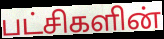
பட்சிகளின்